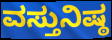
ವಸ್ತುನಿಷ್ಠ